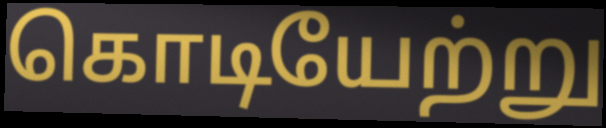
கொடியேற்று